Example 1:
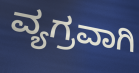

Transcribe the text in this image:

ವ್ಯಗ್ರವಾಗಿ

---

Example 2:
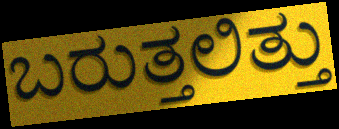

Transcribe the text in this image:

ಬರುತ್ತಲಿತ್ತು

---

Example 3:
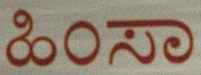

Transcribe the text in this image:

ಹಿಂಸಾ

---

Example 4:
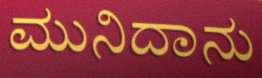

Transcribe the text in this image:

ಮುನಿದಾನು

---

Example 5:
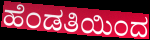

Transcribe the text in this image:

ಹೆಂಡತಿಯಿಂದ